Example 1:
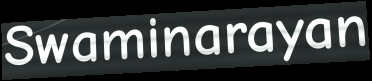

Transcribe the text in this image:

Swaminarayan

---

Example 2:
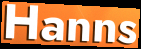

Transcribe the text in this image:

Hanns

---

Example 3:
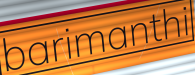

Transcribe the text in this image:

barimanthi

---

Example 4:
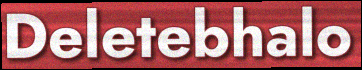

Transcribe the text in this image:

Deletebhalo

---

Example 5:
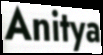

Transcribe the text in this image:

Anitya